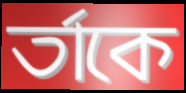
র্তাকে